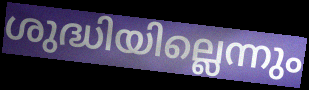
ശുദ്ധിയില്ലെന്നും